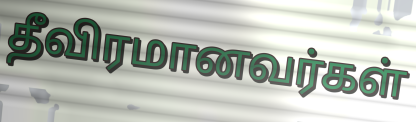
தீவிரமானவர்கள்